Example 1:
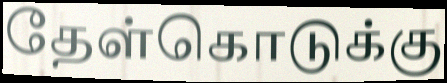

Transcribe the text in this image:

தேள்கொடுக்கு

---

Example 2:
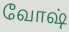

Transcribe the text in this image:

வோஷ்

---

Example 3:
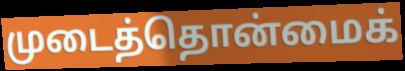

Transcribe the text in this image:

முடைத்தொன்மைக்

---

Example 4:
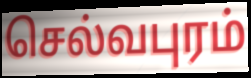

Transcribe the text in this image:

செல்வபுரம்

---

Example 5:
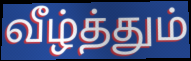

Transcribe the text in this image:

வீழ்த்தும்